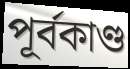
পূর্বকাণ্ড